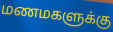
மணமகளுக்கு